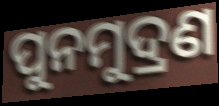
ପୁନମୁଦ୍ରଣ